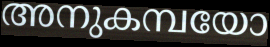
അനുകമ്പയോ